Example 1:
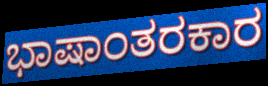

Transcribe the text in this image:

ಭಾಷಾಂತರಕಾರ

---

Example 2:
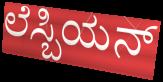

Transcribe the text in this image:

ಲೆಸ್ಬಿಯನ್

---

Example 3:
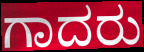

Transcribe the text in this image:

ಗಾದರು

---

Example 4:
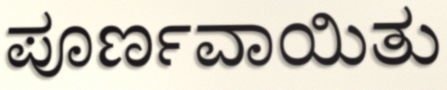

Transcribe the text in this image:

ಪೂರ್ಣವಾಯಿತು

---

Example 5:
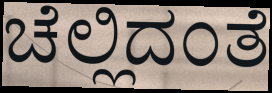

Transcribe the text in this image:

ಚೆಲ್ಲಿದಂತೆ